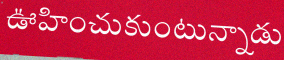
ఊహించుకుంటున్నాడు